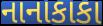
નાનાકાકા